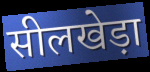
सीलखेड़ा